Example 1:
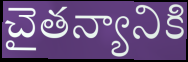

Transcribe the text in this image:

చైతన్యానికి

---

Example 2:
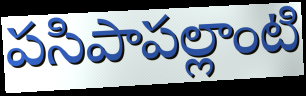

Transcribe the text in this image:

పసిపాపల్లాంటి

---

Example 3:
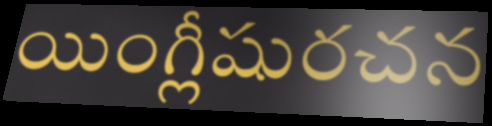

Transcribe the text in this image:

యింగ్లీషురచన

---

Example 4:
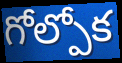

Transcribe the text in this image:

గోల్పోక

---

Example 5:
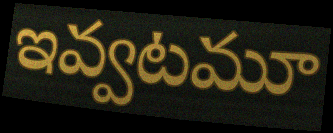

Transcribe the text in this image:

ఇవ్వటమూ